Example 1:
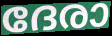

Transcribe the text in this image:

ദേരാ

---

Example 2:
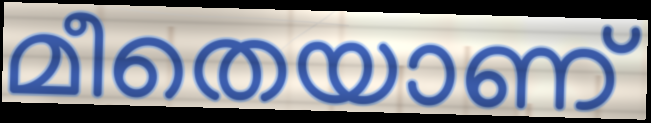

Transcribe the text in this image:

മീതെയാണ്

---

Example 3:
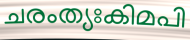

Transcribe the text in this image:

ചരംത്യഃകിമപി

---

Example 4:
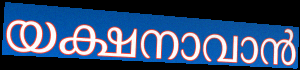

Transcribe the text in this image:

യക്ഷനാവാൻ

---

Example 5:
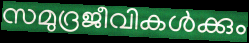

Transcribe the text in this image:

സമുദ്രജീവികൾക്കും